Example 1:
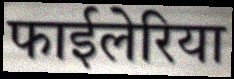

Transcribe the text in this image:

फाईलेरिया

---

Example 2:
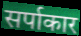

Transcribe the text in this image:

सर्पाकार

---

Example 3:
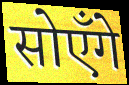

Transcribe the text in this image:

सोएँगे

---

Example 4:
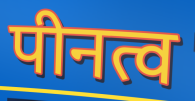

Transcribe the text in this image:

पीनत्व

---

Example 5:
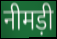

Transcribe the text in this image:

नीमड़ी